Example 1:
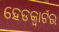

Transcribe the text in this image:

ହେଡକ୍ୱାର୍ଟର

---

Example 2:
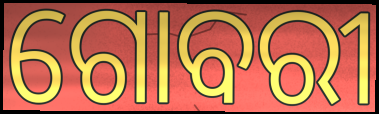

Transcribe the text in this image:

ଗୋବରୀ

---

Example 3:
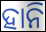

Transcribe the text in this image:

ହାନି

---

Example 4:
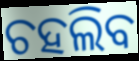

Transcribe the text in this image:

ଚହଲିବ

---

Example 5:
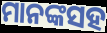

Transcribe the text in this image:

ମାନଙ୍କସହ